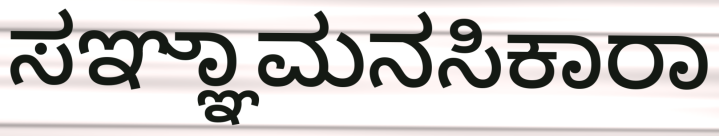
ಸಞ್ಞಾಮನಸಿಕಾರಾ